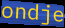
ondje